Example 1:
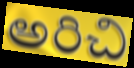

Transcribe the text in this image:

అరిచి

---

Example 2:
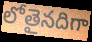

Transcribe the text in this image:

లోతైనదిగా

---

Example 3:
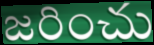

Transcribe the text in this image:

జరించు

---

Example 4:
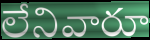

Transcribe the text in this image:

లేనివారూ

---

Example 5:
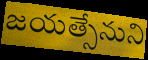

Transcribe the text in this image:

జయత్సేనుని